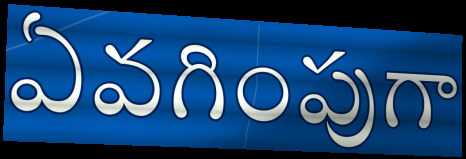
ఏవగింపుగా